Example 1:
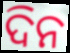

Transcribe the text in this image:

ଦିନ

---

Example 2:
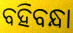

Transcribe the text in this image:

ବହିବନ୍ଧା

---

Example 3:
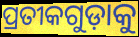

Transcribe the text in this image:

ପ୍ରତୀକଗୁଡ଼ାକୁ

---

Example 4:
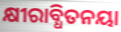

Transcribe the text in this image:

କ୍ଷୀରାବ୍ଧିତନୟା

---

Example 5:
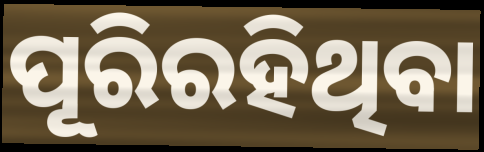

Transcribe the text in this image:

ପୂରିରହିଥିବା